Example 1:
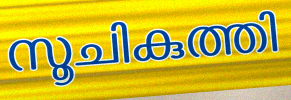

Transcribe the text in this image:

സൂചികുത്തി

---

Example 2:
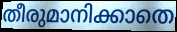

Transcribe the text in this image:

തീരുമാനിക്കാതെ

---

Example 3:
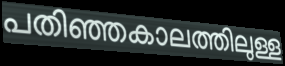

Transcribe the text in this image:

പതിഞ്ഞകാലത്തിലുള്ള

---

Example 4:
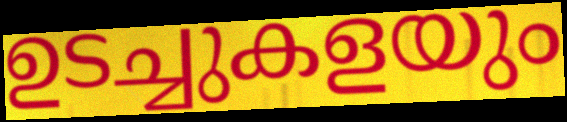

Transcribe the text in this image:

ഉടച്ചുകളയും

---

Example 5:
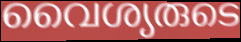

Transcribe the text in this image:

വൈശ്യരുടെ